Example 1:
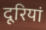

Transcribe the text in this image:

दूरियां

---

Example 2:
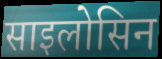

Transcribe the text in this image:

साइलोसिन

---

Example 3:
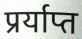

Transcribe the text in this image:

प्रर्याप्त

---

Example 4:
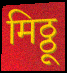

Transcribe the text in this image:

मिठ्ठू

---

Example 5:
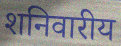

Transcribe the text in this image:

शनिवारीय